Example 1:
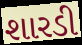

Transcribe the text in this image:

શારડી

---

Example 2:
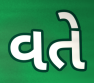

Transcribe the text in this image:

વતે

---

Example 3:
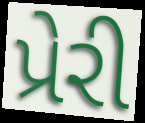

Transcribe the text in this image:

પ્રેરી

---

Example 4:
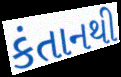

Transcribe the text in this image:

કંતાનથી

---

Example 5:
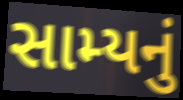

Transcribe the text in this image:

સામ્યનું